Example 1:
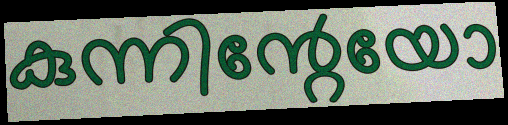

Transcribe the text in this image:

കുന്നിന്റേയോ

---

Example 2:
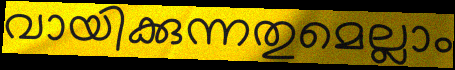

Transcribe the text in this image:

വായിക്കുന്നതുമെല്ലാം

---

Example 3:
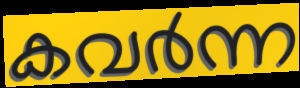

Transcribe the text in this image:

കവർന്ന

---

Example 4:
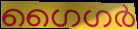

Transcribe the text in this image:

ഗൈഗർ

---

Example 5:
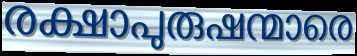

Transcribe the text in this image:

രക്ഷാപുരുഷന്മാരെ